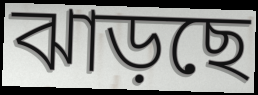
ঝাড়ছে